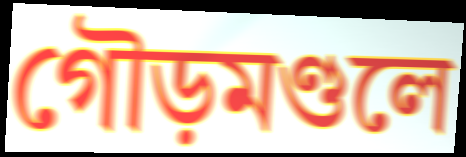
গৌড়মণ্ডলে